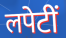
लपेटीं